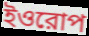
ইওরোপ